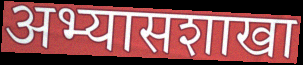
अभ्यासशाखा